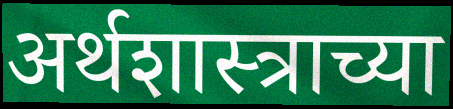
अर्थशास्त्राच्या